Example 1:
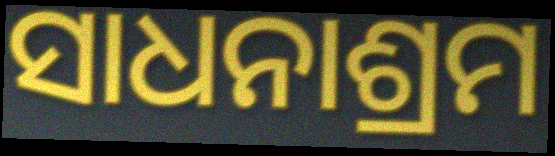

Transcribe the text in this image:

ସାଧନାଶ୍ରମ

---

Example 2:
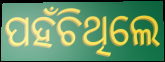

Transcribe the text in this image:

ପହଁଚିଥିଲେ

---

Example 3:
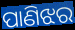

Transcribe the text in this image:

ପାଣିଝର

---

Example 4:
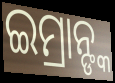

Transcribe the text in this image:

ଇମ୍ରାନ୍ଙ୍କ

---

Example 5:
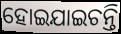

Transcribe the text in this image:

ହୋଇଯାଇଚନ୍ତି